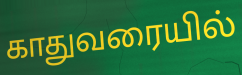
காதுவரையில்